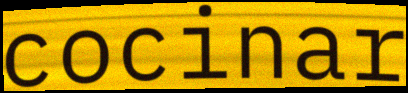
cocinar